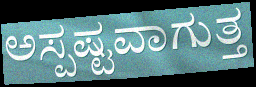
ಅಸ್ಪಷ್ಟವಾಗುತ್ತ